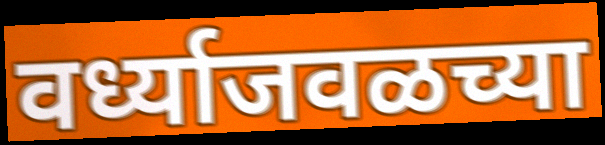
वर्ध्याजवळच्या